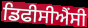
ਡਿਫੀਸੀਐਂਸੀ